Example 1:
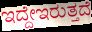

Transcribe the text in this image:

ಇದ್ದೇಇರುತ್ತದೆ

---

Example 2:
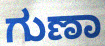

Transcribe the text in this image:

ಗುಣಾ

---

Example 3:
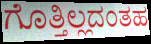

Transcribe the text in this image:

ಗೊತ್ತಿಲ್ಲದಂತಹ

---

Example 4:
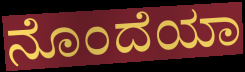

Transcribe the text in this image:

ನೊಂದೆಯಾ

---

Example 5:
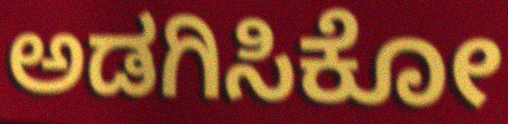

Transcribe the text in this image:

ಅಡಗಿಸಿಕೋ